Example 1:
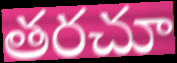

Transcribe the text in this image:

తరచూ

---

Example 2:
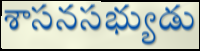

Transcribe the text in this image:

శాసనసభ్యుడు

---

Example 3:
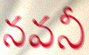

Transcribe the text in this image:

నవనీ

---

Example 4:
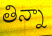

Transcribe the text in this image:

తిన్నా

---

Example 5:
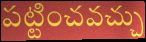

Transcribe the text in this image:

పట్టించవచ్చు